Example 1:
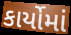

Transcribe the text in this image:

કાર્યોમાં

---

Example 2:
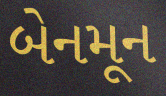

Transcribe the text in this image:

બેનમૂન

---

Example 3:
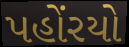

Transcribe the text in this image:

પહોંરયો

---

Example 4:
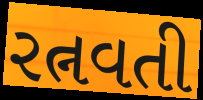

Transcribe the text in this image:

રત્નવતી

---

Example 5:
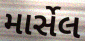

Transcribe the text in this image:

માર્સેલ